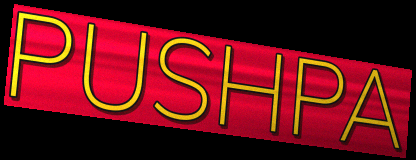
PUSHPA